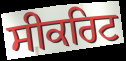
ਸੀਕਰਿਟ